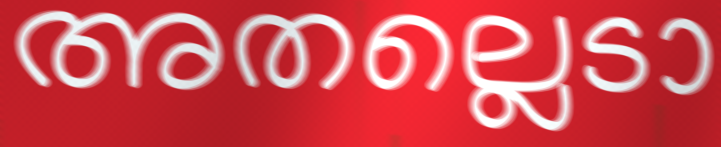
അതല്ലെടാ